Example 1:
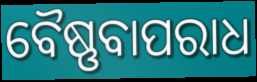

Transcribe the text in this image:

ବୈଷ୍ଣବାପରାଧ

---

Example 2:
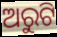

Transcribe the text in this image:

ଅରୁଟି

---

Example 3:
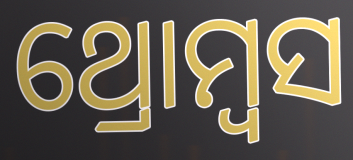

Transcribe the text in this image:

ଥ୍ରୋମ୍ବସ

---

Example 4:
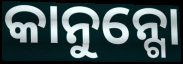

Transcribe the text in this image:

କାନୁନ୍ଗୋ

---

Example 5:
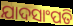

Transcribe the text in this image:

ଯାଦସାଂପତି